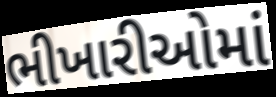
ભીખારીઓમાં